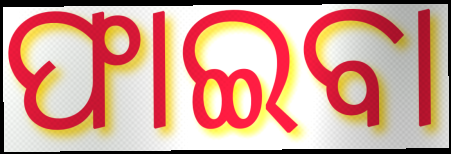
ଫାଇବା